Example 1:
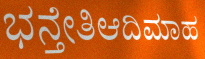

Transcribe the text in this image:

ಭನ್ತೇತಿಆದಿಮಾಹ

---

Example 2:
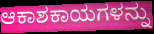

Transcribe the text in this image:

ಆಕಾಶಕಾಯಗಳನ್ನು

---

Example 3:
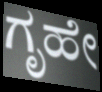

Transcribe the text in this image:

ಗೃಹೇ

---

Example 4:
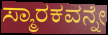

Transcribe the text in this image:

ಸ್ಮಾರಕವನ್ನೇ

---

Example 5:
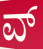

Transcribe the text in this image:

ವ್